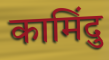
कामिंदु